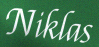
Niklas